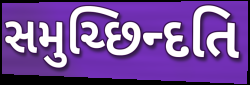
સમુચ્છિન્દતિ